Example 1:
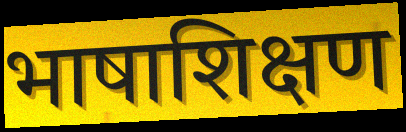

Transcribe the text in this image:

भाषाशिक्षण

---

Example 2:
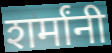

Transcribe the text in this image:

शर्मांनी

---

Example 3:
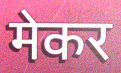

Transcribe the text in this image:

मेकर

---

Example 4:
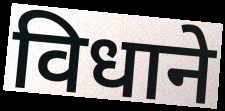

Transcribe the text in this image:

विधाने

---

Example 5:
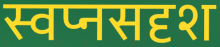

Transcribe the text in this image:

स्वप्नसदृश